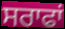
ਸਰਾਫਾਂ